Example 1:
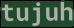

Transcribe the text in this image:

tujuh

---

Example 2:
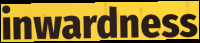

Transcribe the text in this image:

inwardness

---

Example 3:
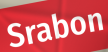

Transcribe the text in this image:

Srabon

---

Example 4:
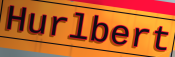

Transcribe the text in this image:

Hurlbert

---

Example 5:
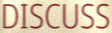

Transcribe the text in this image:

DISCUSS